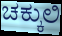
ಚಕ್ಕುಲಿ